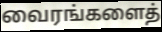
வைரங்களைத்